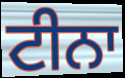
ਟੀਨਾ